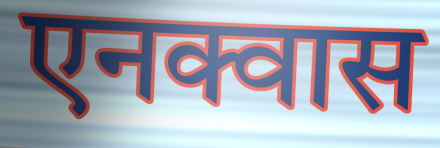
एनक्वास